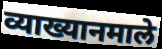
व्याख्यानमाले